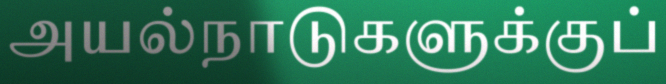
அயல்நாடுகளுக்குப்